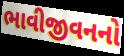
ભાવીજીવનનો